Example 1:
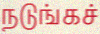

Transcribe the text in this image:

நடுங்கச்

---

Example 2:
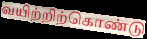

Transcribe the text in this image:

வயிற்றிற்கொண்டு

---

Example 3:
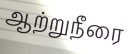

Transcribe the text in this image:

ஆற்றுநீரை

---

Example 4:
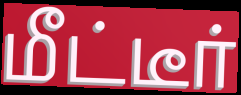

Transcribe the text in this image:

மீட்டீர்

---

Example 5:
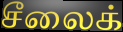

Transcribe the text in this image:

சீலைக்